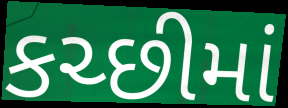
કચ્છીમાં